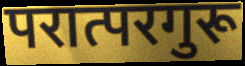
परात्परगुरू